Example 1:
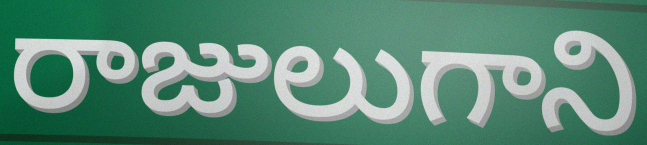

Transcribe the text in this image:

రాజులుగాని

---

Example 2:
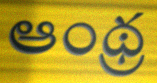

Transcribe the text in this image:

ఆంథ్ర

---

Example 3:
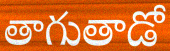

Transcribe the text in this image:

తాగుతాడో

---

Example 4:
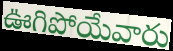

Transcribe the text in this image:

ఊగిపోయేవారు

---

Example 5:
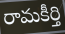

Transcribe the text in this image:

రామకీర్తి